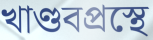
খাণ্ডবপ্রস্থে